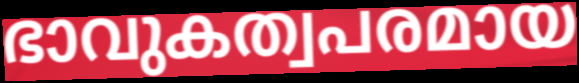
ഭാവുകത്വപരമായ